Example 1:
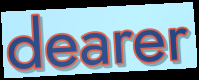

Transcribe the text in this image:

dearer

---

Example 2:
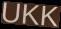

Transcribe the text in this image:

UKK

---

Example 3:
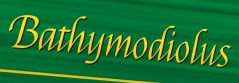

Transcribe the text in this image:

Bathymodiolus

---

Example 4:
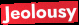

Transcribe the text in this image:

Jeolousy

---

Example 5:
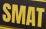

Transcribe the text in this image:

SMAT